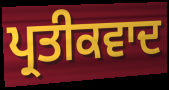
ਪ੍ਰਤੀਕਵਾਦ